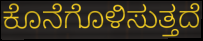
ಕೊನೆಗೊಳಿಸುತ್ತದೆ